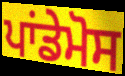
ਪਾਂਡੇਮੋਸ